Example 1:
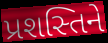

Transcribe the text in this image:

પ્રશસ્તિને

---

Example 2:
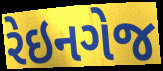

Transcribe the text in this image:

રેઇનગેજ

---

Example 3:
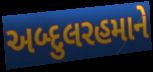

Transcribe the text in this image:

અબ્દુલરહમાને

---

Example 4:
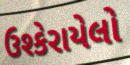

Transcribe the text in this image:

ઉશ્કેરાયેલો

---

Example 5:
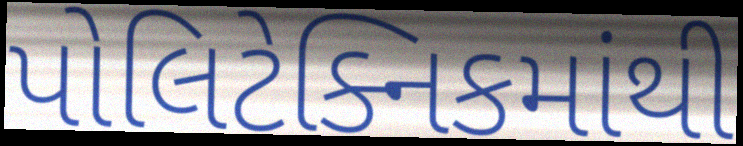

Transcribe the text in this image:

પોલિટેક્નિકમાંથી